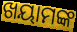
ଖୟାମଙ୍କ